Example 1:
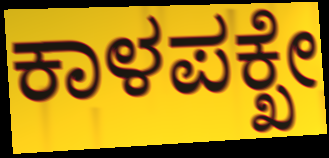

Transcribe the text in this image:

ಕಾಳಪಕ್ಖೇ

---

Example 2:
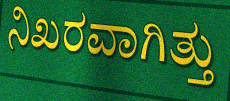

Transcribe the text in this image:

ನಿಖರವಾಗಿತ್ತು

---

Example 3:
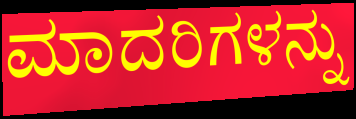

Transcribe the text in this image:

ಮಾದರಿಗಳನ್ನು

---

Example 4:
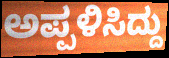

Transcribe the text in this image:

ಅಪ್ಪಳಿಸಿದ್ದು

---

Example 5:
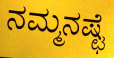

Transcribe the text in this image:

ನಮ್ಮನಷ್ಟೆ